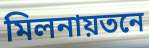
মিলনায়তনে